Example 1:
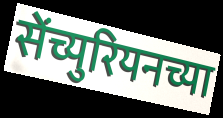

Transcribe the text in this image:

सेंच्युरियनच्या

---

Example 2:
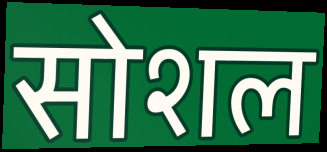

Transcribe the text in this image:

सोशल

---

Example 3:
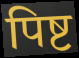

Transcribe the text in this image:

पिष्ट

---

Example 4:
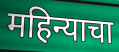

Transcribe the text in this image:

महिन्याचा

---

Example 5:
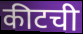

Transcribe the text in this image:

कीटची